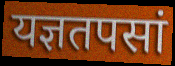
यज्ञतपसां